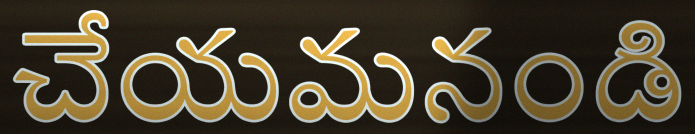
చేయమనండి